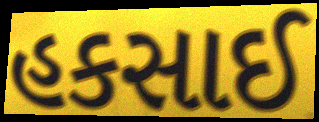
હકસાઈ